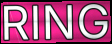
RING